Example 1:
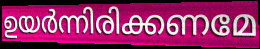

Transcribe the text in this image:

ഉയർന്നിരിക്കണമേ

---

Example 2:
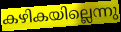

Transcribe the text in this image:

കഴികയില്ലെന്നു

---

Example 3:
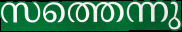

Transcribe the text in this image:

സത്തെന്നു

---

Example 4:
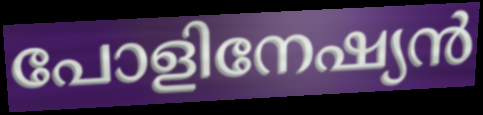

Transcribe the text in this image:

പോളിനേഷ്യൻ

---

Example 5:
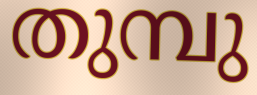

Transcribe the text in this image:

തുമ്പു